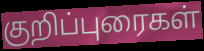
குறிப்புரைகள்